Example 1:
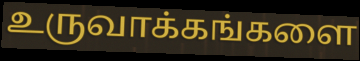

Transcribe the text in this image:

உருவாக்கங்களை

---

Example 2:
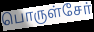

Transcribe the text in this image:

பொருள்சேர்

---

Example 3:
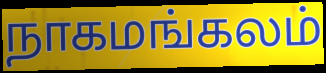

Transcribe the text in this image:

நாகமங்கலம்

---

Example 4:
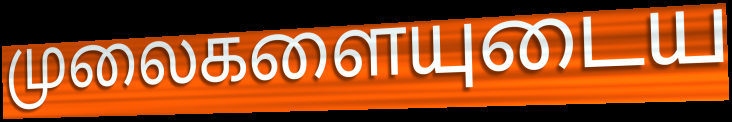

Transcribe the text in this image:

முலைகளையுடைய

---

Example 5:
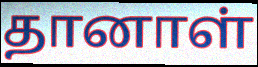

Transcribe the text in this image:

தானாள்